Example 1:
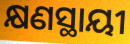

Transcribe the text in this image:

କ୍ଷଣସ୍ଥାୟୀ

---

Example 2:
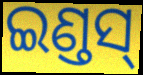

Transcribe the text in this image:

ଇଣ୍ଡସ୍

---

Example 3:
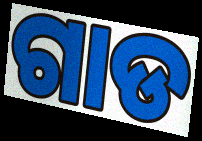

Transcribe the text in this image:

ଗାଡ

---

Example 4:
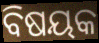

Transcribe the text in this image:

ବିଷୟକ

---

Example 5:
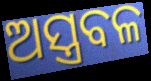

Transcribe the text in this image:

ଅସ୍ତ୍ରବଳ